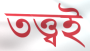
তত্ত্বই